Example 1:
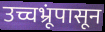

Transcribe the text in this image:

उच्चभ्रूंपासून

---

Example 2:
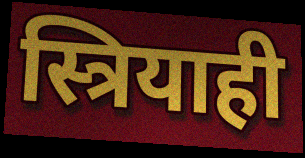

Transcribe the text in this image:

स्त्रियाही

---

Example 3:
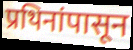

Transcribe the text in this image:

प्रथिनांपासून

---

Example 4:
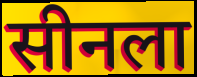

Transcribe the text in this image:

सीनला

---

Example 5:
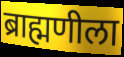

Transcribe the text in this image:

ब्राह्मणीला